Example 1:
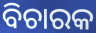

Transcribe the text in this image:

ବିଚାରକ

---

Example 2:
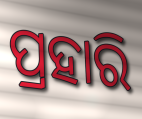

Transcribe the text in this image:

ପ୍ରହାରି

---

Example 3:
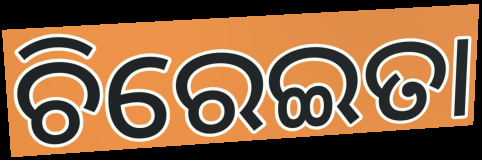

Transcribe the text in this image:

ଚିରେଇତା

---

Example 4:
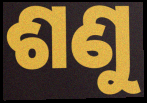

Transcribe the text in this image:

ଶଣୁ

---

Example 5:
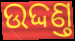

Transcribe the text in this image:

ଉଦ୍ଦଣ୍ତ